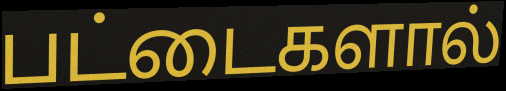
பட்டைகளால்